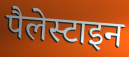
पैलेस्टाइन